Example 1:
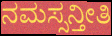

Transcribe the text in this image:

ನಮಸ್ಸನ್ತೀತಿ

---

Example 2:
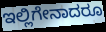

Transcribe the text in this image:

ಇಲ್ಲಿಗೇನಾದರೂ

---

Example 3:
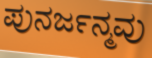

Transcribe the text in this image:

ಪುನರ್ಜನ್ಮವು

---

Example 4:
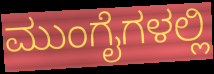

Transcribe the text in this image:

ಮುಂಗೈಗಳಲ್ಲಿ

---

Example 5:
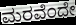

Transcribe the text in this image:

ಮರವೆಂದೇ